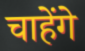
चाहेंगे